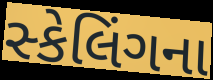
સ્કેલિંગના